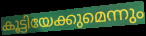
കൂട്ടിയേക്കുമെന്നും